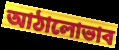
আঠালোভাব